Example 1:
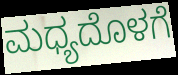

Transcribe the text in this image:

ಮಧ್ಯದೊಳಗೆ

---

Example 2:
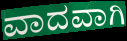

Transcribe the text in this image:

ವಾದವಾಗಿ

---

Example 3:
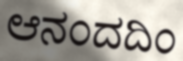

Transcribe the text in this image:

ಆನಂದದಿಂ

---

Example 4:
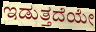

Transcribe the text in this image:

ಇಡುತ್ತದೆಯೇ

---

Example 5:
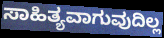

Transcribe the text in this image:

ಸಾಹಿತ್ಯವಾಗುವುದಿಲ್ಲ